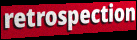
retrospection